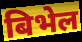
बिभेल